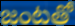
జంటతో